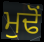
ਮੁਢੋਂ